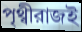
পৃথ্বীরাজই